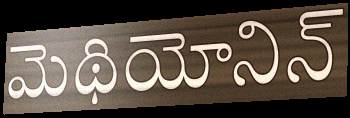
మెథియోనిన్